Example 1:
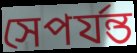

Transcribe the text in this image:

সেপর্যন্ত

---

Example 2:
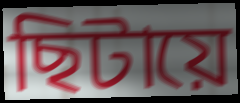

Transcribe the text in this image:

ছিটায়ে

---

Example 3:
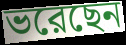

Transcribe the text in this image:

ভরেছেন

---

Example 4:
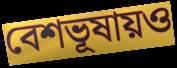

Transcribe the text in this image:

বেশভূষায়ও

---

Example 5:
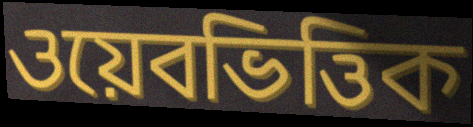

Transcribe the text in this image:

ওয়েবভিত্তিক